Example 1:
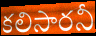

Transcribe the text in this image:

కలిసారనీ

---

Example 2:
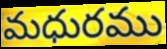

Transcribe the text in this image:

మధురము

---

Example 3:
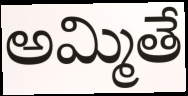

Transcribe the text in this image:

అమ్మితే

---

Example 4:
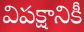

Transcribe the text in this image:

విపక్షానికీ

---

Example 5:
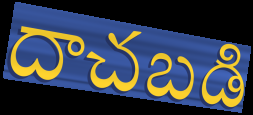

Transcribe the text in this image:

దాచబడి